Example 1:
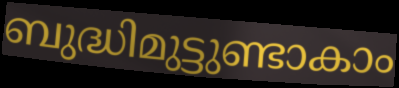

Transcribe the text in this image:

ബുദ്ധിമുട്ടുണ്ടാകാം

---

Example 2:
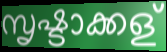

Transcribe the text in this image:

സൃഷ്ടാക്കള്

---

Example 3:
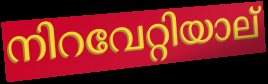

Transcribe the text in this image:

നിറവേറ്റിയാല്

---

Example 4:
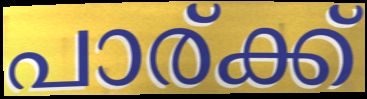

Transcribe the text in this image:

പാര്ക്ക്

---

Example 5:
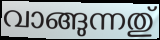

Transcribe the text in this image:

വാങ്ങുന്നതു്